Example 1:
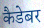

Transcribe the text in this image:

कैडेबर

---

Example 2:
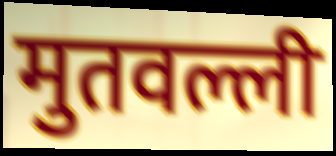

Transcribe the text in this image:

मुतवल्ली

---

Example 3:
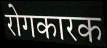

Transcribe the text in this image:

रोगकारक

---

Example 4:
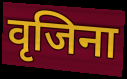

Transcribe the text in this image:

वृजिना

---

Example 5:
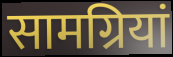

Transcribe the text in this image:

सामग्रियां